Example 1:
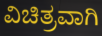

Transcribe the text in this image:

ವಿಚಿತ್ರವಾಗಿ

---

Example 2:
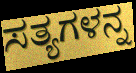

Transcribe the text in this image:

ಸತ್ಯಗಳನ್ನ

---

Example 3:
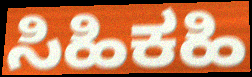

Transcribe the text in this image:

ಸಿಹಿಕಹಿ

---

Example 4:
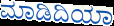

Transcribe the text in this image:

ಮಾಡಿದಿಯಾ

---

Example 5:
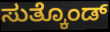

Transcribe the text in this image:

ಸುತ್ಕೊಂಡ್